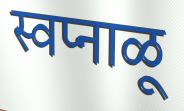
स्वप्नाळू